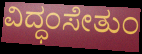
ವಿದ್ಧಂಸೇತುಂ